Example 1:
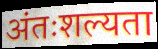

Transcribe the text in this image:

अंतःशल्यता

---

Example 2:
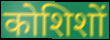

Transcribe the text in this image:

कोशिशों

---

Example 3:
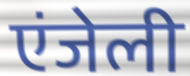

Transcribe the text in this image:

एंजेली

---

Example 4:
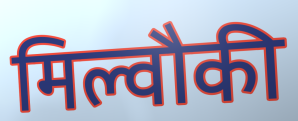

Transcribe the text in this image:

मिल्वौकी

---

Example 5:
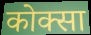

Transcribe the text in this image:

कोक्सा